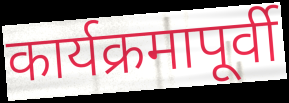
कार्यक्रमापूर्वी